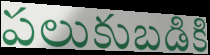
పలుకుబడికి